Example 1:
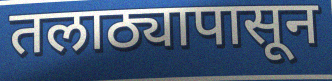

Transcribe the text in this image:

तलाठ्यापासून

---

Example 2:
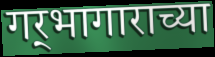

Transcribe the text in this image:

गर्भागाराच्या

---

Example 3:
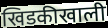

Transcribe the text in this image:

खिडकीखाली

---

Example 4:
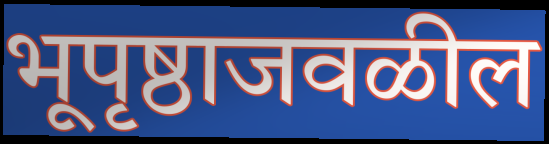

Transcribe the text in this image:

भूपृष्ठाजवळील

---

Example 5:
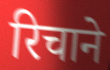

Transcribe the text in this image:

रिचाने